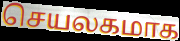
செயலகமாக